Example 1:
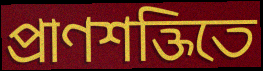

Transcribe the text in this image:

প্রাণশক্তিতে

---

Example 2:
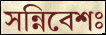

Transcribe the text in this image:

সন্নিবেশঃ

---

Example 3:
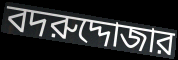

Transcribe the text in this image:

বদরুদ্দোজার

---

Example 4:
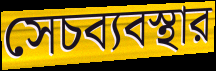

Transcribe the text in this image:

সেচব্যবস্থার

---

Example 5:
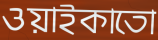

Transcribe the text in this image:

ওয়াইকাতো